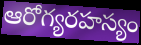
ఆరోగ్యరహస్యం